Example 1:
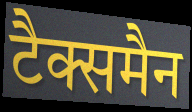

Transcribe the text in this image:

टैक्समैन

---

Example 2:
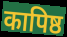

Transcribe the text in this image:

कापिष्ठ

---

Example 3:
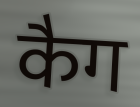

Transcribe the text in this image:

कैग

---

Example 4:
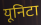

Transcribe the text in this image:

यूनिटा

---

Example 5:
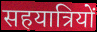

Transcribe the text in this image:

सहयात्रियों